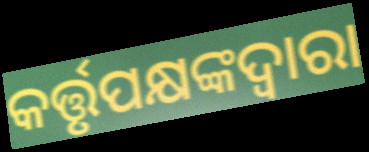
କର୍ତ୍ତୃପକ୍ଷଙ୍କଦ୍ଵାରା